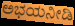
ಅಭಯನೀಡಿ